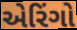
એરિંગો